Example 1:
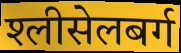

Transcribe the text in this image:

श्लीसेलबर्ग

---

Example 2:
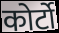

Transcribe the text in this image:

कोर्टो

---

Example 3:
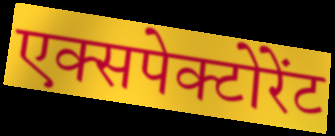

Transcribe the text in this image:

एक्सपेक्टोरेंट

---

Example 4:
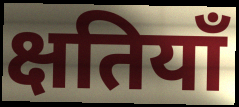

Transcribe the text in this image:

क्षतियाँ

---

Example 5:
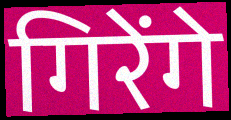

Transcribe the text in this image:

गिरेंगे